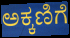
ಅಕ್ಕಣಿಗೆ